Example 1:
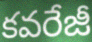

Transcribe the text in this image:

కవరేజీ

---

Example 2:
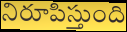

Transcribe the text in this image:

నిరూపిస్తుంది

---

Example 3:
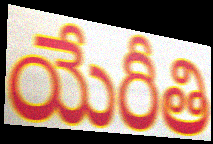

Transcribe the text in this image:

యేరీతి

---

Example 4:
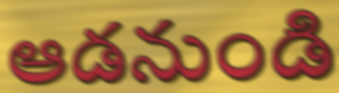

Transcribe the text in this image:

ఆడనుండి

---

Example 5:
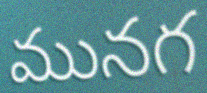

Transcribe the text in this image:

మునగ